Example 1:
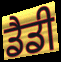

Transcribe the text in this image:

ਡੈਡੀ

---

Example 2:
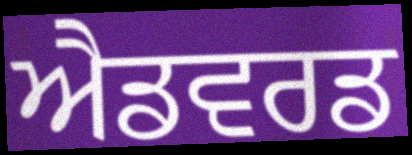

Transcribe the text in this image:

ਐਡਵਰਡ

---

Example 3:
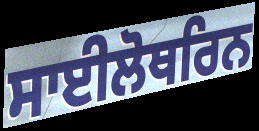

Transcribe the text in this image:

ਸਾਈਲੋਥਰਿਨ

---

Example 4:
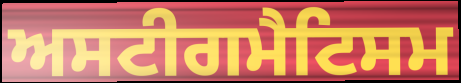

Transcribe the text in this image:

ਅਸਟੀਗਮੈਟਿਸਮ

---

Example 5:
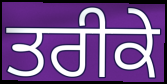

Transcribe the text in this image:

ਤਰੀਕੇ